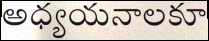
అధ్యయనాలకూ